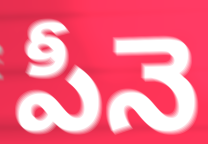
పీనె